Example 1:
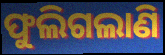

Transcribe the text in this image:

ଫୁଲିଗଲାଣି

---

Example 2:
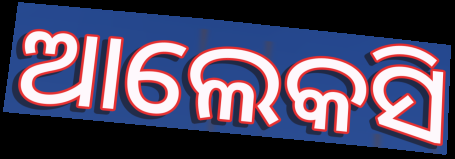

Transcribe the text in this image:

ଆଲେକସି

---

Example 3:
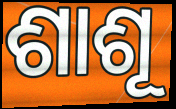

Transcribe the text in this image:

ଶାଶୂ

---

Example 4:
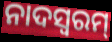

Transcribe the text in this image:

ନାଦସ୍ଵରମ୍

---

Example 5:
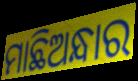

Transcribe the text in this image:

ମାଛିଅନ୍ଧାର